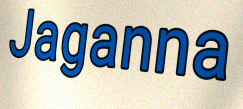
Jaganna